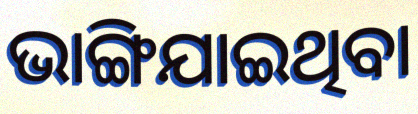
ଭାଙ୍ଗିଯାଇଥିବା